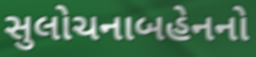
સુલોચનાબહેનનો